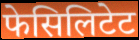
फेसिलिटेट